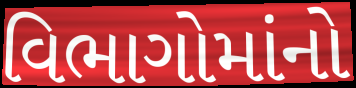
વિભાગોમાંનો